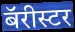
बॅरीस्टर